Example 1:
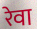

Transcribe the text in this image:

रेवा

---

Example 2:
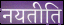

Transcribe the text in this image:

नयतीति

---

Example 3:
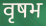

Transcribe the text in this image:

वृषभ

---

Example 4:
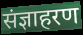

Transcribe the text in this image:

संज्ञाहरण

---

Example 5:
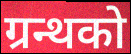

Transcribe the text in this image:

ग्रन्थको